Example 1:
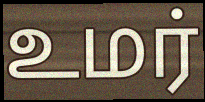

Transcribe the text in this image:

உமர்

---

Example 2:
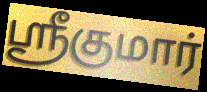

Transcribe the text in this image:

ஸ்ரீகுமார்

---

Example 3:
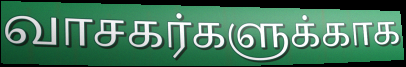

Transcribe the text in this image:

வாசகர்களுக்காக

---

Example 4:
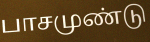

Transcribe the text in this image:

பாசமுண்டு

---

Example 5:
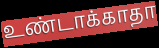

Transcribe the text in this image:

உண்டாக்காதா